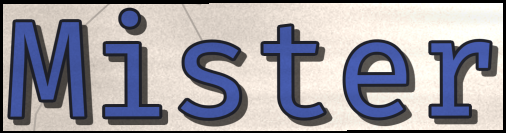
Mister